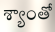
శ్యాంతో